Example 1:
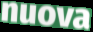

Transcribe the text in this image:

nuova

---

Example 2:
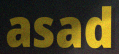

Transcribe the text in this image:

asad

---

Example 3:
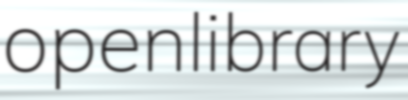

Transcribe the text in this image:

openlibrary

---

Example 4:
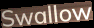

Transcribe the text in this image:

Swallow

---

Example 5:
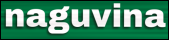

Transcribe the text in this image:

naguvina